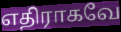
எதிராகவே